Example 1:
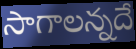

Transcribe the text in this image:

సాగాలన్నదే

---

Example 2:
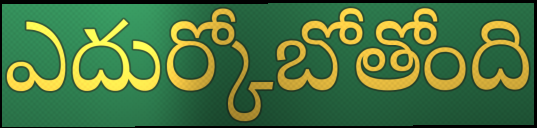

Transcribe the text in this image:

ఎదుర్కోబోతోంది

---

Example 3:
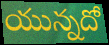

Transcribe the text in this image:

యున్నదో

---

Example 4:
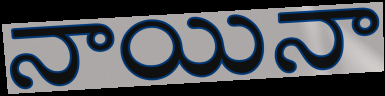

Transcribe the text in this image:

నాయినా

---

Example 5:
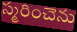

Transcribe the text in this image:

స్మరించెను